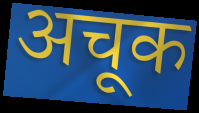
अचूक